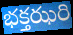
భక్తఝరి